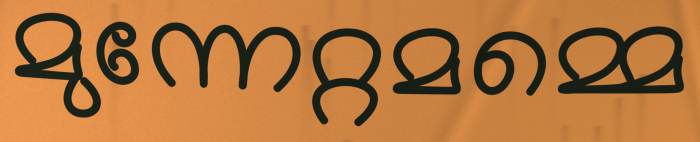
മുന്നേറ്റമമ്മെ